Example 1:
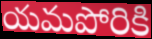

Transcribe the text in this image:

యమపోరికి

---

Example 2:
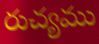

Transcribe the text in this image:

రుచ్యము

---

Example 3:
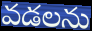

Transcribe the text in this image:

వడలను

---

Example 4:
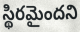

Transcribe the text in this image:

స్థిరమైందని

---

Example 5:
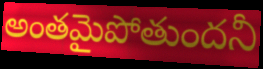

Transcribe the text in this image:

అంతమైపోతుందనీ